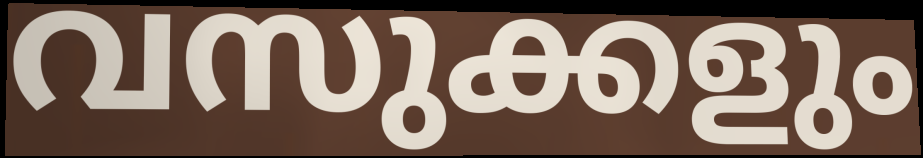
വസുക്കളും